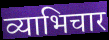
व्याभिचार